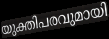
യുക്തിപരവുമായി